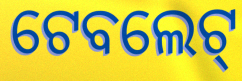
ଟେବଲେଟ୍